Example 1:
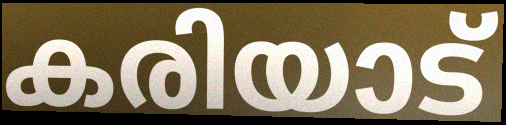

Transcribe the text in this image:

കരിയാട്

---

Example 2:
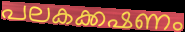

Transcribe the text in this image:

പലകക്കഷണം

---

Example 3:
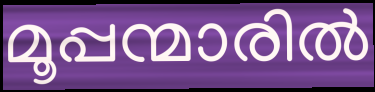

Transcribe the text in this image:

മൂപ്പന്മാരിൽ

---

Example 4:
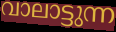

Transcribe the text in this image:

വാലാട്ടുന്ന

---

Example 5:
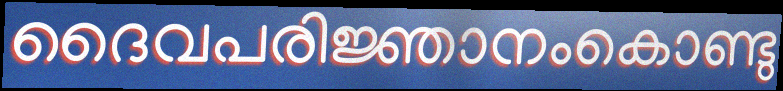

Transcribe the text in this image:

ദൈവപരിജ്ഞാനംകൊണ്ടു